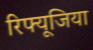
रिफ्यूजिया